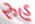
રુહ